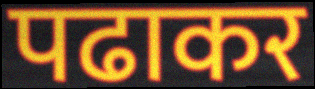
पढाकर